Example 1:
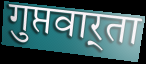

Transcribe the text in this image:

गुप्तवार्ता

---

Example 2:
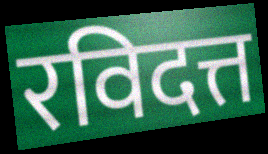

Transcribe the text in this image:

रविदत्त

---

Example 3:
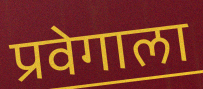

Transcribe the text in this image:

प्रवेगाला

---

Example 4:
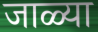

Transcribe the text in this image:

जाळ्या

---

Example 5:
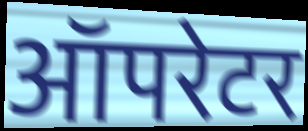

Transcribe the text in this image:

ऑपरेटर